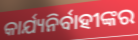
କାର୍ଯ୍ୟନିର୍ବାହୀଙ୍କର